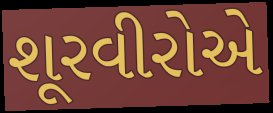
શૂરવીરોએ